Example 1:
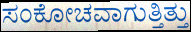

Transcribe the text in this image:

ಸಂಕೋಚವಾಗುತ್ತಿತ್ತು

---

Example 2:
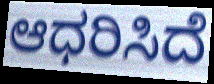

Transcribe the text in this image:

ಆಧರಿಸಿದೆ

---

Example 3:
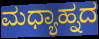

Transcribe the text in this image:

ಮಧ್ಯಾಹ್ನದ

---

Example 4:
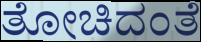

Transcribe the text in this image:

ತೋಚಿದಂತೆ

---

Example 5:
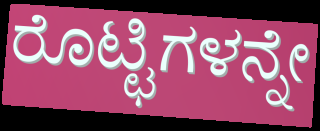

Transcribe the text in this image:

ರೊಟ್ಟಿಗಳನ್ನೇ